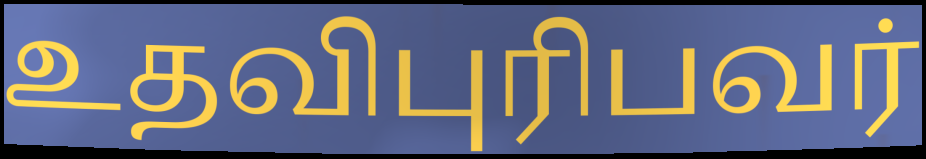
உதவிபுரிபவர்